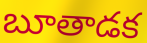
బూతాడక